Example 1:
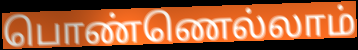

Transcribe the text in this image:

பொண்ணெல்லாம்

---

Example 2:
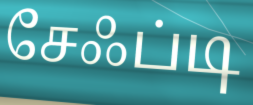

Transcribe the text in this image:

சேஃப்டி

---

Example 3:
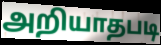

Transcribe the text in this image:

அறியாதபடி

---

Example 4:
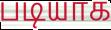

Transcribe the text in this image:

படியாக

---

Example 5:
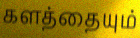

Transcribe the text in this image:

களத்தையும்